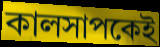
কালসাপকেই